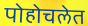
पोहोचलेत